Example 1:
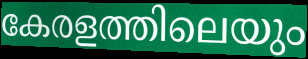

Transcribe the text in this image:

കേരളത്തിലെയും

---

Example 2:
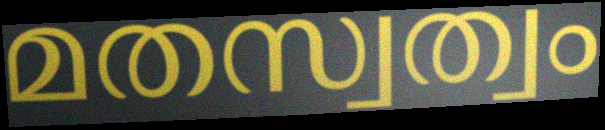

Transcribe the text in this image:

മതസ്വത്വം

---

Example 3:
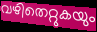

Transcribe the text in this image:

വഴിതെറ്റുകയും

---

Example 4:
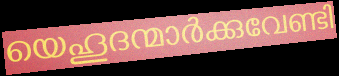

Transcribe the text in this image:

യെഹൂദന്മാർക്കുവേണ്ടി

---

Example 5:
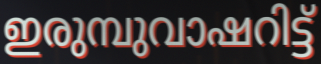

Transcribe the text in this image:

ഇരുമ്പുവാഷറിട്ട്